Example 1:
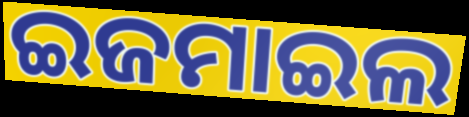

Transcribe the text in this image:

ଇଜମାଇଲ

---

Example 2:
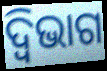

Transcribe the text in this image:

ଦ୍ୱିଭାଗ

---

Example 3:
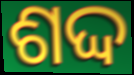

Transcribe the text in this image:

ଶଦ୍ଦ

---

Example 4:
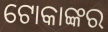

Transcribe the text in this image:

ଟୋକାଙ୍କର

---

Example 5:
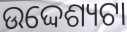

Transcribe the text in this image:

ଉଦ୍ଦେଶ୍ୟଟା